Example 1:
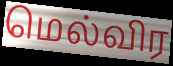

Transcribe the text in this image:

மெல்விர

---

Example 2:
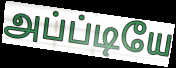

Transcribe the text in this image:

அப்ப்டியே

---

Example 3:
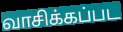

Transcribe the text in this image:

வாசிக்கப்பட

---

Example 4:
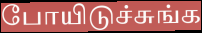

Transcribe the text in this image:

போயிடுச்சுங்க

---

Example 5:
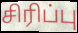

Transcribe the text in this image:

சிரிப்பு